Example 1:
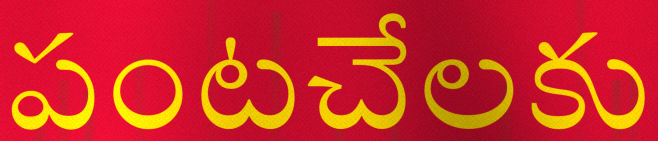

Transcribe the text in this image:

పంటచేలకు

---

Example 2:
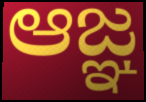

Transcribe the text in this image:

ఆజ్ఞ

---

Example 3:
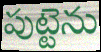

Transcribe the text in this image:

పుట్టెను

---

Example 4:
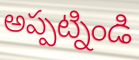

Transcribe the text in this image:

అప్పట్నిండి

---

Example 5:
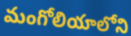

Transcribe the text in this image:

మంగోలియాలోని